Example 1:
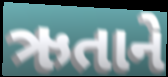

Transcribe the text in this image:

ઋતાને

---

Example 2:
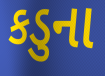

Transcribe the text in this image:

કડુના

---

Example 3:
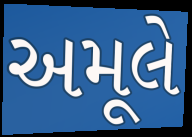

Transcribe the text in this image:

અમૂલે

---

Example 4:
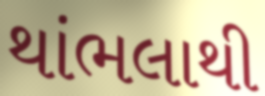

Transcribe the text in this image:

થાંભલાથી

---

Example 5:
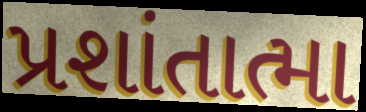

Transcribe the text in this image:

પ્રશાંતાત્મા